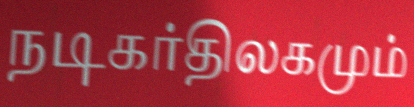
நடிகர்திலகமும்